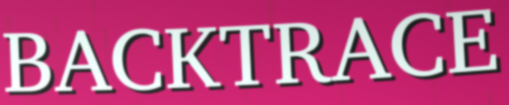
BACKTRACE